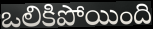
ఒలికిపోయింది